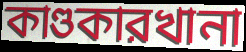
কাণ্ডকারখানা